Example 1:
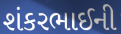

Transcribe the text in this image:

શંકરભાઈની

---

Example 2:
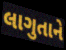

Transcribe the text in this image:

લાગુતાને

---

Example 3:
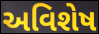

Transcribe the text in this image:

અવિશેષ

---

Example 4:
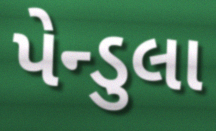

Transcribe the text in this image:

પેન્ડુલા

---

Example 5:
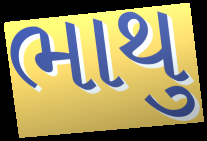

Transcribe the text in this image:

ભાથુ